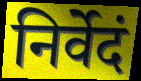
निर्वेदं